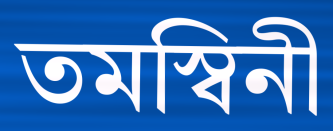
তমস্বিনী